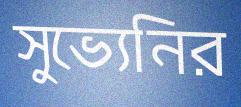
সুভ্যেনির